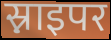
स्नाइपर